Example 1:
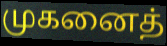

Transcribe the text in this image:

முகனைத்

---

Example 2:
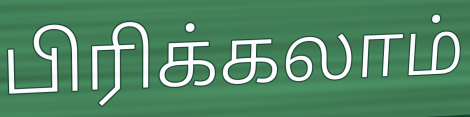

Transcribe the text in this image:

பிரிக்கலாம்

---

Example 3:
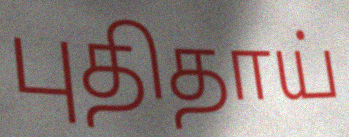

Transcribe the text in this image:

புதிதாய்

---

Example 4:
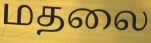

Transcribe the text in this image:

மதலை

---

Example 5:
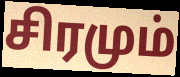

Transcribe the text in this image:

சிரமும்